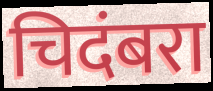
चिदंबरा